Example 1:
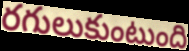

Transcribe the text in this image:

రగులుకుంటుంది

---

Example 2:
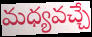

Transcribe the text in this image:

మధ్యవచ్చే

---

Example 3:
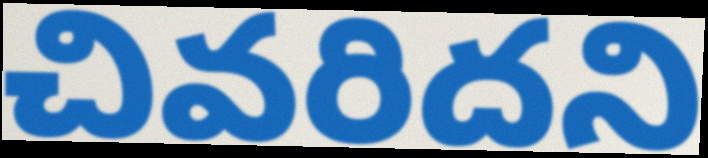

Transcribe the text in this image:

చివరిదని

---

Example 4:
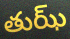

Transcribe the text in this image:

తుఝ్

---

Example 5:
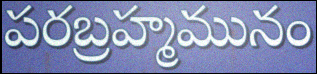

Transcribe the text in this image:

పరబ్రహ్మమునం